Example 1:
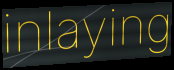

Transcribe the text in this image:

inlaying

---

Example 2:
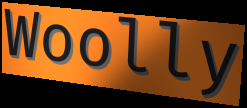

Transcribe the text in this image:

Woolly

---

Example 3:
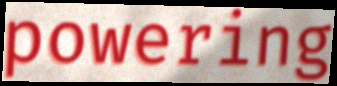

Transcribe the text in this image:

powering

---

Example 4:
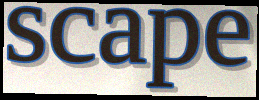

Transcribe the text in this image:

scape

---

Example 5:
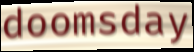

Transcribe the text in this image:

doomsday